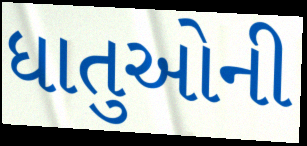
ધાતુઓની